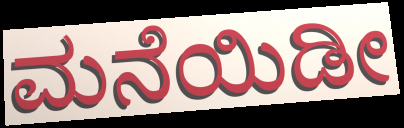
ಮನೆಯಿಡೀ